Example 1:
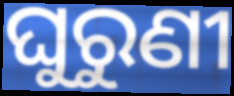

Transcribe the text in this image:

ଘୁରୁଣୀ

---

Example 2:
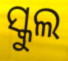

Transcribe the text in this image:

ସ୍କୁଲ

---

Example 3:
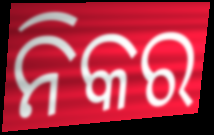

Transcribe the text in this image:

ନିକର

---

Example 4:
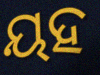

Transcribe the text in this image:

ୟହ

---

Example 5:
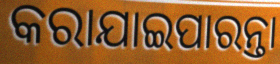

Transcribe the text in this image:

କରାଯାଇପାରନ୍ତା